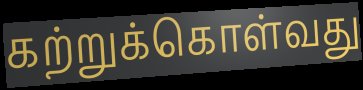
கற்றுக்கொள்வது